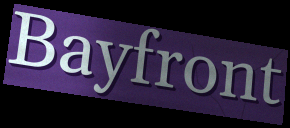
Bayfront